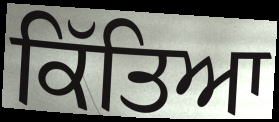
ਕਿੱਤਿਆ